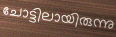
ചോട്ടിലായിരുന്നു